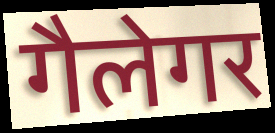
गैलेगर